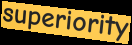
superiority